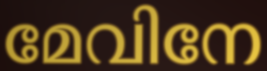
മേവിനേ